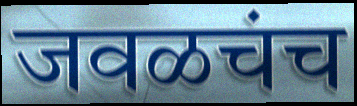
जवळचंच